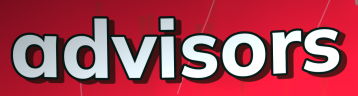
advisors